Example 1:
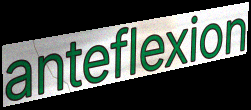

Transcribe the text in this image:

anteflexion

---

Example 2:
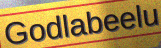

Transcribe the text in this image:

Godlabeelu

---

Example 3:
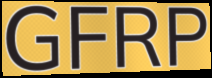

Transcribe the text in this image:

GFRP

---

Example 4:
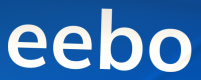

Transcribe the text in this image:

eebo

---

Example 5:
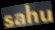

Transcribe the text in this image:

sahu